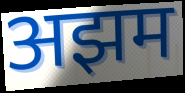
अझम